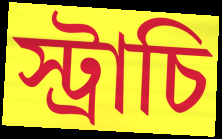
স্ট্রাচি